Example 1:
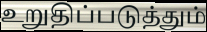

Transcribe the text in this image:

உறுதிப்படுத்தும்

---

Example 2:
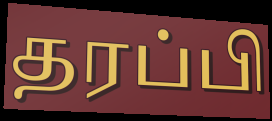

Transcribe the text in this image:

தரப்பி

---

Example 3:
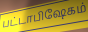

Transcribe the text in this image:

பட்டாபிஷேகம்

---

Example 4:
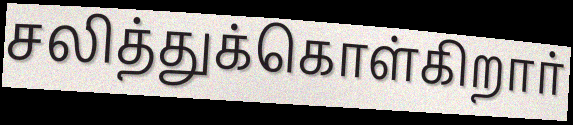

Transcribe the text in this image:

சலித்துக்கொள்கிறார்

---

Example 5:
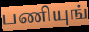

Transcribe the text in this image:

பணியுங்